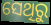
ସେଥିରୁ